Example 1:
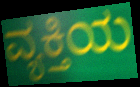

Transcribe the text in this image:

ವ್ಯಕ್ತಿಯ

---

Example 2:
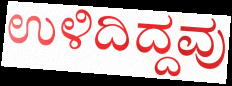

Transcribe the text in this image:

ಉಳಿದಿದ್ದವು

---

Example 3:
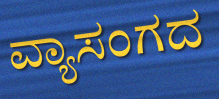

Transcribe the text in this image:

ವ್ಯಾಸಂಗದ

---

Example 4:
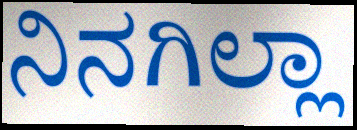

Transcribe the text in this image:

ನಿನಗಿಲ್ಲಾ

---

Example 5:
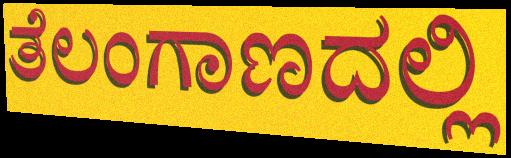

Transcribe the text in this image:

ತೆಲಂಗಾಣದಲ್ಲಿ